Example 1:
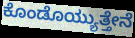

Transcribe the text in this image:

ಕೊಂಡೊಯ್ಯುತ್ತೇನೆ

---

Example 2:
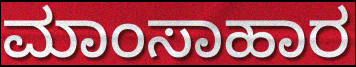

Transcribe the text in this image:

ಮಾಂಸಾಹಾರ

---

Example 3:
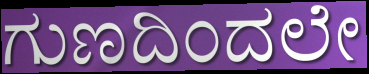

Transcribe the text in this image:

ಗುಣದಿಂದಲೇ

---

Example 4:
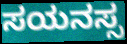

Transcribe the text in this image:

ಸಯನಸ್ಸ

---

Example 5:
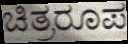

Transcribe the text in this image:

ಚಿತ್ರರೂಪ